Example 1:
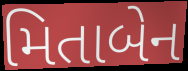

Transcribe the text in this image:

મિતાબેન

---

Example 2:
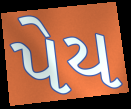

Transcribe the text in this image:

પેય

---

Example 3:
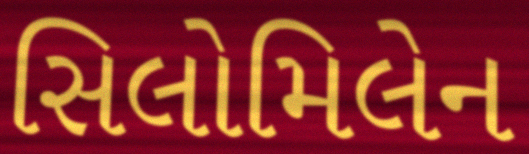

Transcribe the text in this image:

સિલોમિલેન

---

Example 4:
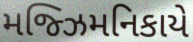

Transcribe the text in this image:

મજ્ઝિમનિકાયે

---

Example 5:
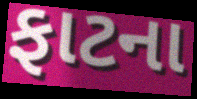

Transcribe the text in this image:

ફાટના